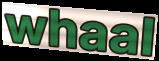
whaal